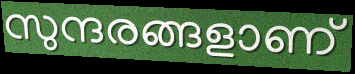
സുന്ദരങ്ങളാണ്